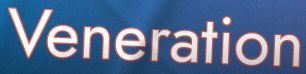
Veneration